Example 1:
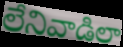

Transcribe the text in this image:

లేనివాడిలా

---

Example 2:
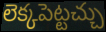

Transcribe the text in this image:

లెక్కపెట్టచ్చు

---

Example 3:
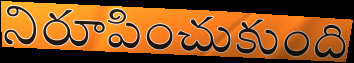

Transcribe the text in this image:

నిరూపించుకుంది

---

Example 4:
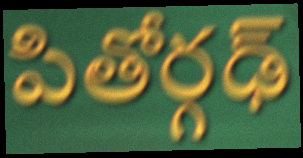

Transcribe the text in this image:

పితోర్గఢ్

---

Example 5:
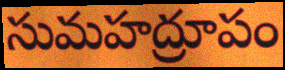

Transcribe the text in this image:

సుమహద్రూపం